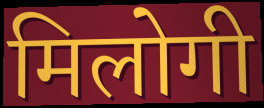
मिलोगी